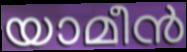
യാമീൻ